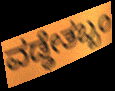
ವಡ್ಢೇತಬ್ಬಂ